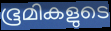
ഭൂമികളുടെ